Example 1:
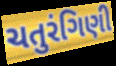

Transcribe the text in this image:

ચતુરંગિણી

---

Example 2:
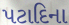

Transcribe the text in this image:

પટાદિના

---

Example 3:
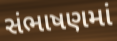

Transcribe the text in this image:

સંભાષણમાં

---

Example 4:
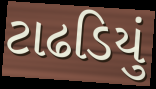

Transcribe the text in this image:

ટાઢડિયું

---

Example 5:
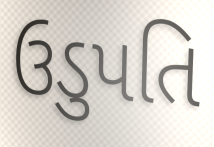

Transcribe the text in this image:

ઉડુપતિ